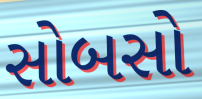
સોબસો